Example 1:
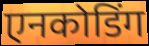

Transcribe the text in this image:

एनकोडिंग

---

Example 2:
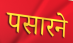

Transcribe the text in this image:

पसारने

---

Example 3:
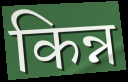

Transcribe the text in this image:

किन्न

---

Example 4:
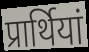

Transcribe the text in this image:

प्रार्थियां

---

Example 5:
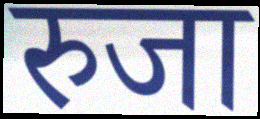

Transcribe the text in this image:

रुजा